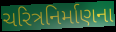
ચરિત્રનિર્માણના